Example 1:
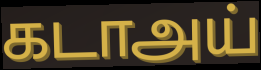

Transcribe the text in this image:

கடாஅய்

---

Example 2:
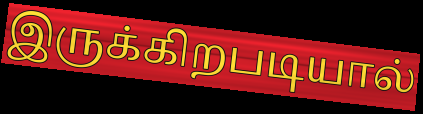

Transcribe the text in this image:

இருக்கிறபடியால்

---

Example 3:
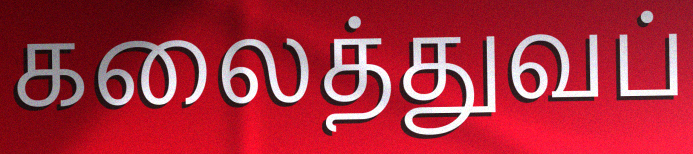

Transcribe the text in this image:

கலைத்துவப்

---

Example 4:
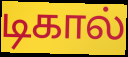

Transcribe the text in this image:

டிகால்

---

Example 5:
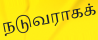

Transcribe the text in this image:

நடுவராகக்